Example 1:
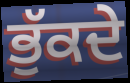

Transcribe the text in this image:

ਭੁੱਕਦੇ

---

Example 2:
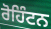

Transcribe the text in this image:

ਰੋਹਿੰਟਨ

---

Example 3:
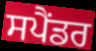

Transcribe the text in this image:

ਸਪੈਂਡਰ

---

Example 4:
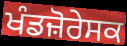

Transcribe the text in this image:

ਖੰਡਜ਼ੋਰੇਸਕ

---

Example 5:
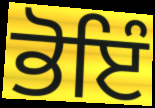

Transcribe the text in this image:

ਭੋਇੰ